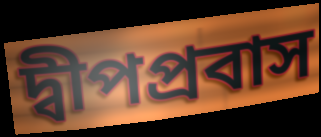
দ্বীপপ্রবাস